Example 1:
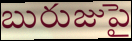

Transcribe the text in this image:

బురుజుపై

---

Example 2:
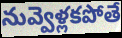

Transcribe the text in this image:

నువ్వెళ్లకపోతే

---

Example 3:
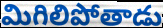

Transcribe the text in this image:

మిగిలిపోతాడు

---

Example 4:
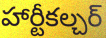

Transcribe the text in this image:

హార్టీకల్చర్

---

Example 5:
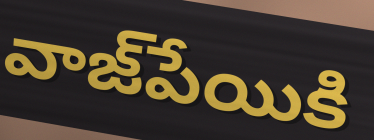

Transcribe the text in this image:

వాజ్‌పేయికి